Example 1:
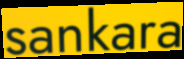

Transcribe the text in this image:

sankara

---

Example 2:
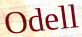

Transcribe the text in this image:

Odell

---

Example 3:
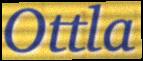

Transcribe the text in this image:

Ottla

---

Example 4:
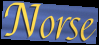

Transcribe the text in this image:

Norse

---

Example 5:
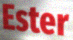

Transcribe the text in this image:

Ester